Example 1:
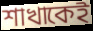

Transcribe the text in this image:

শাখাকেই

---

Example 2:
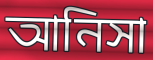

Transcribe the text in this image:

আনিসা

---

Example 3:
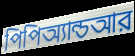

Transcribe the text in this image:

পিপিঅ্যান্ডআর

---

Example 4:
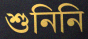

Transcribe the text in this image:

শুনিনি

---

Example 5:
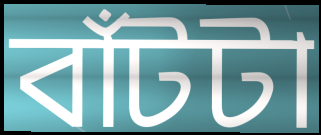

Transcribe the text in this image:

বাঁটটা